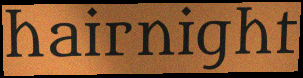
hairnight